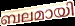
ബലമായി